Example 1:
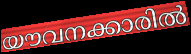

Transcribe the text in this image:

യൗവനക്കാരിൽ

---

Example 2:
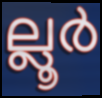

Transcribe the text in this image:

ല്ലൂർ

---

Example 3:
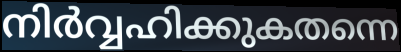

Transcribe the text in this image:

നിർവ്വഹിക്കുകതന്നെ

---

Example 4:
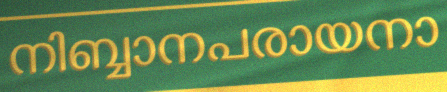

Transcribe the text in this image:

നിബ്ബാനപരായനാ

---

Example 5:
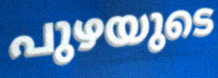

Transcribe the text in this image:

പുഴയുടെ